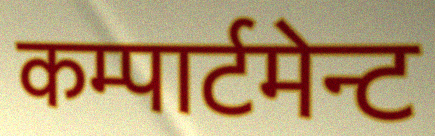
कम्पार्टमेन्ट